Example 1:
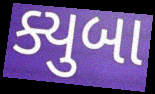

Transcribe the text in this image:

ક્યુબા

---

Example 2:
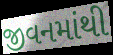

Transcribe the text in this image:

જીવનમાંથી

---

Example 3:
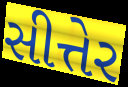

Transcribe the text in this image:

સીત્તેર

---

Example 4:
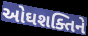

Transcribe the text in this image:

ઓઘશક્તિને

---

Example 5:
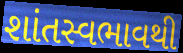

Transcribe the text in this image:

શાંતસ્વભાવથી